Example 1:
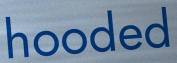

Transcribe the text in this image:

hooded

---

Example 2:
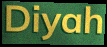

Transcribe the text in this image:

Diyah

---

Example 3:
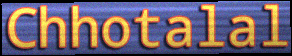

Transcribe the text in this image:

Chhotalal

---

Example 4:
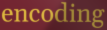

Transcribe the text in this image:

encoding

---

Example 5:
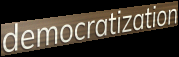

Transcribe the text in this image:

democratization